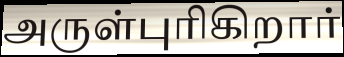
அருள்புரிகிறார்